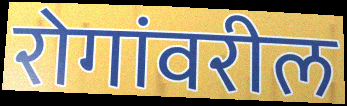
रोगांवरील